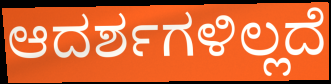
ಆದರ್ಶಗಳಿಲ್ಲದೆ